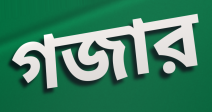
গজার